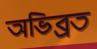
অভিব্রত